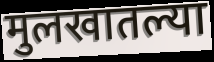
मुलखातल्या